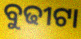
ବୁଢୀଟା